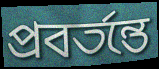
প্রবর্তন্তে